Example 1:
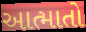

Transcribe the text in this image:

આત્માતો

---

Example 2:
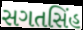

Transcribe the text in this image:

સગતસિંહ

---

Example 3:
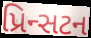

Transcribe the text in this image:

પ્રિન્સટન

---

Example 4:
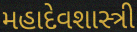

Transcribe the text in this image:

મહાદેવશાસ્ત્રી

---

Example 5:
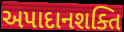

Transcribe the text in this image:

અપાદાનશક્તિ